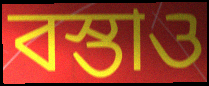
বস্তাও